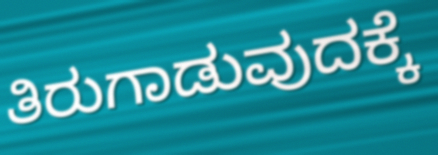
ತಿರುಗಾಡುವುದಕ್ಕೆ